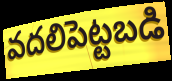
వదలిపెట్టబడి